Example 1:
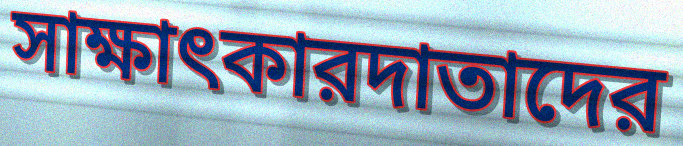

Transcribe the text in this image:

সাক্ষাৎকারদাতাদের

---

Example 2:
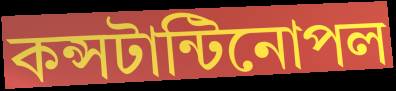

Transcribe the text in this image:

কন্সটান্টিনোপল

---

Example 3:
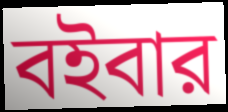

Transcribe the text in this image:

বইবার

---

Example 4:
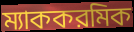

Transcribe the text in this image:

ম্যাককরমিক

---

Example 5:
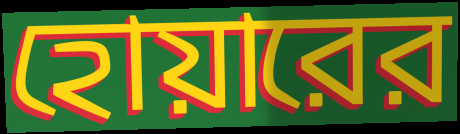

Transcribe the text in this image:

হোয়ারের